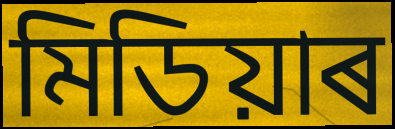
মিডিয়াৰ